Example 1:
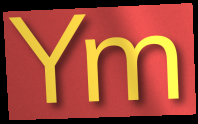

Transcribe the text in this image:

Ym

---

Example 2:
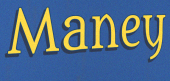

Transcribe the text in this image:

Maney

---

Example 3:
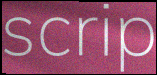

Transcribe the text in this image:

scrip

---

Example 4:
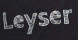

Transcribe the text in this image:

Leyser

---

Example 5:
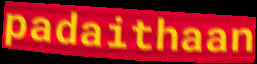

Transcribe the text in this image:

padaithaan